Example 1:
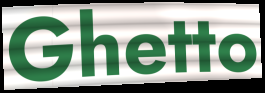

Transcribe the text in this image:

Ghetto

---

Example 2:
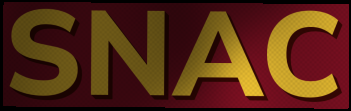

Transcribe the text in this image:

SNAC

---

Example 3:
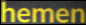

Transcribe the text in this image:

hemen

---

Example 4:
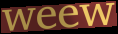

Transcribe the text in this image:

weew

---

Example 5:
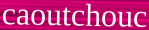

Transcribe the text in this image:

caoutchouc